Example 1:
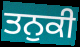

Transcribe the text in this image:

ਤਨੁਕੀ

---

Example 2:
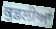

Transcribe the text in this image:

ਕੁਡਲੀਆਂ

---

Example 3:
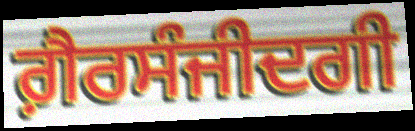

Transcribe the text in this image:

ਗ਼ੈਰਸੰਜੀਦਗੀ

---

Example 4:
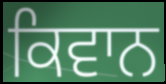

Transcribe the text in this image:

ਕਿਵਾਨ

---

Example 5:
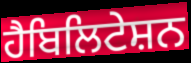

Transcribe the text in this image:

ਹੈਬਿਲਿਟੇਸ਼ਨ